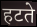
हटते